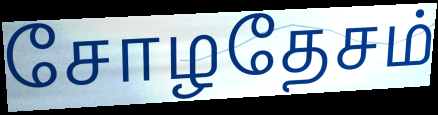
சோழதேசம்